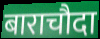
बाराचौदा